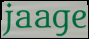
jaage